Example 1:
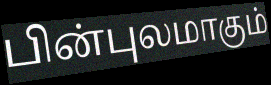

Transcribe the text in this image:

பின்புலமாகும்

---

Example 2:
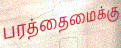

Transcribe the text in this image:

பரத்தைமைக்கு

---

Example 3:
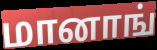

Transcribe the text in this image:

மானாங்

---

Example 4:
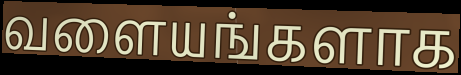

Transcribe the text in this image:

வளையங்களாக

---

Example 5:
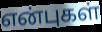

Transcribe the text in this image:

என்புகள்